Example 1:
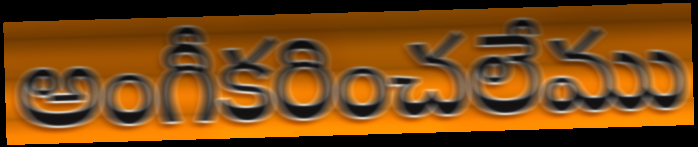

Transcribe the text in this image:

అంగీకరించలేము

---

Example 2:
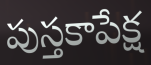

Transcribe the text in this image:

పుస్తకాపేక్ష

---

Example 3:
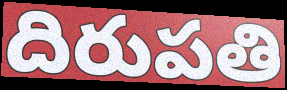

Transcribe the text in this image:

దిరుపతి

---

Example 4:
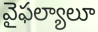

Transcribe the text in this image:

వైఫల్యాలూ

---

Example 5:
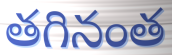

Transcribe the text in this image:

తగినంత